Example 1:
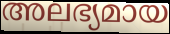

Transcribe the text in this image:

അലഭ്യമായ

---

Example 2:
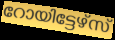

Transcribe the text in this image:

റോയിട്ടേഴ്സ്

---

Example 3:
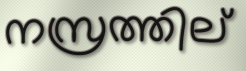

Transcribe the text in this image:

നസ്രത്തില്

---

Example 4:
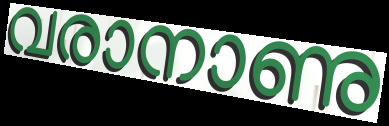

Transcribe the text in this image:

വരാനാണു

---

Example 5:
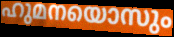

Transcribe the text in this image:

ഹുമനയൊസും